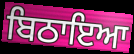
ਬਿਠਾਇਆ